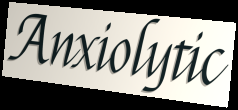
Anxiolytic